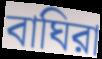
বাঘিরা